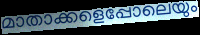
മാതാക്കളെപ്പോലെയും